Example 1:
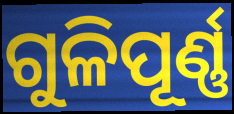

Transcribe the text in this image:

ଗୁଳିପୂର୍ଣ୍ଣ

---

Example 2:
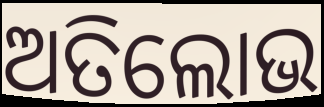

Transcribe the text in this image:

ଅତିଲୋଭ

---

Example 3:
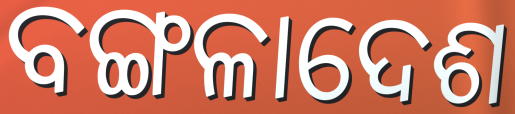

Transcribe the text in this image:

ବଙ୍ଗଳାଦେଶ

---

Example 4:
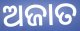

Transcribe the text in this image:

ଅଜାତ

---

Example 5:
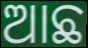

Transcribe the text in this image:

ଆଛ